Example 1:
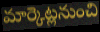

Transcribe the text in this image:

మార్కెట్లనుంచి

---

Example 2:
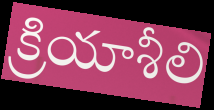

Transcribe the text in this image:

క్రియాశీలి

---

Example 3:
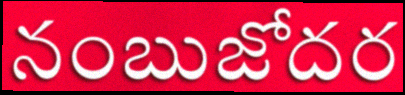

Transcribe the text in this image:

నంబుజోదర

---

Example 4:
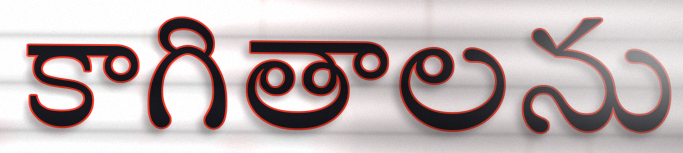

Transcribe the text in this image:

కాగితాలను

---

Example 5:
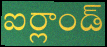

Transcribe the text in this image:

ఐర్లాండ్